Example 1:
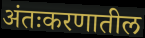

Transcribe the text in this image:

अंतःकरणातील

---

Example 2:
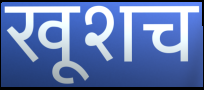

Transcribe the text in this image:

खूशच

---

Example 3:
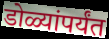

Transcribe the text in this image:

डोळ्यांपर्यंत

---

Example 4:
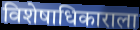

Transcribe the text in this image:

विशेषाधिकाराला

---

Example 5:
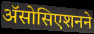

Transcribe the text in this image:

ॲसोसिएशनने